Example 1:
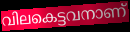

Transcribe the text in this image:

വിലകെട്ടവനാണ്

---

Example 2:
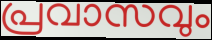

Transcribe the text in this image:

പ്രവാസവും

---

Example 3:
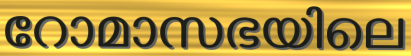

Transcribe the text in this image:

റോമാസഭയിലെ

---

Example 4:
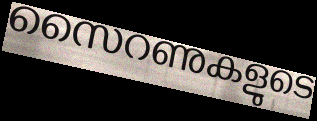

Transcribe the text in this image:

സൈറണുകളുടെ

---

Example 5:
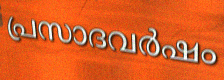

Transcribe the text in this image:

പ്രസാദവർഷം